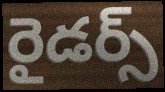
రైడర్స్